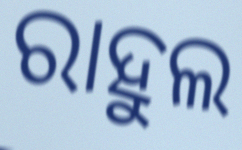
ରାହୁଲ